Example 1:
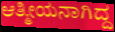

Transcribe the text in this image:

ಆತ್ಮೀಯನಾಗಿದ್ದ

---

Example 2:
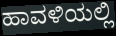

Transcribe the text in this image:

ಹಾವಳಿಯಲ್ಲಿ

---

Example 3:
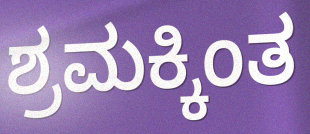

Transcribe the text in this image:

ಶ್ರಮಕ್ಕಿಂತ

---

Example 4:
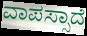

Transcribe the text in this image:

ವಾಪಸ್ಸಾದೆ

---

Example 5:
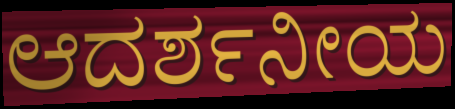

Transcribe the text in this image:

ಆದರ್ಶನೀಯ